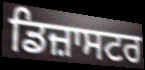
ਡਿਜ਼ਾਸਟਰ